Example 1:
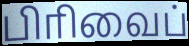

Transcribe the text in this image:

பிரிவைப்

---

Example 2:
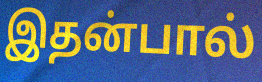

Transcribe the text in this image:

இதன்பால்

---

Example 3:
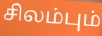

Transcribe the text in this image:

சிலம்பும்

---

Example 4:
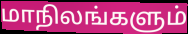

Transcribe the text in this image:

மாநிலங்களும்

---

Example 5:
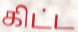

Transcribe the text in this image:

கிட்ட